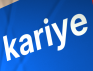
kariye